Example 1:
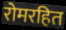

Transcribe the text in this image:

रोमरहित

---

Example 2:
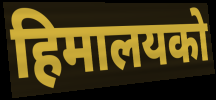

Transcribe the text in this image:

हिमालयको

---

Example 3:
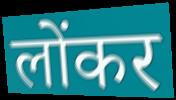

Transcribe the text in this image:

लोंकर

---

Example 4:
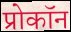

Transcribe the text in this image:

प्रोकॉन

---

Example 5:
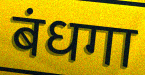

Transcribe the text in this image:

बंधगा